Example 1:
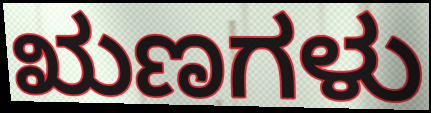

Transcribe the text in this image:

ಋಣಗಳು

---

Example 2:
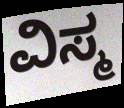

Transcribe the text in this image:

ವಿಸ್ಮ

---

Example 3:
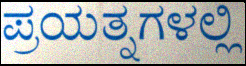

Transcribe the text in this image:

ಪ್ರಯತ್ನಗಳಲ್ಲಿ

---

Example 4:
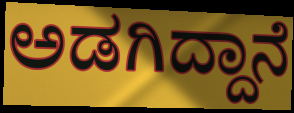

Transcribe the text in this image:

ಅಡಗಿದ್ದಾನೆ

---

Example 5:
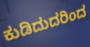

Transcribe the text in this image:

ಕುಡಿದುದರಿಂದ